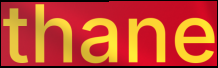
thane